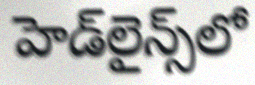
హెడ్‌లైన్స్‌లో